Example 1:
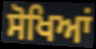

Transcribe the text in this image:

ਸੋਖਿਆਂ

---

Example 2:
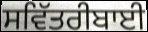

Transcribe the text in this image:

ਸਵਿੱਤਰੀਬਾਈ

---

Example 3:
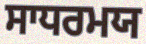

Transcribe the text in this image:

ਸਾਧਰਮਯ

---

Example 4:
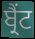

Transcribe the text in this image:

ਬ੍ਰੈਂਟ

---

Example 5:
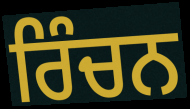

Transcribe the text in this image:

ਰਿੰਚਨ